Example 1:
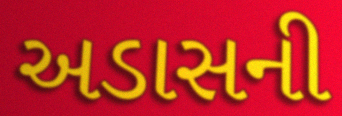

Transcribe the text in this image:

અડાસની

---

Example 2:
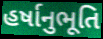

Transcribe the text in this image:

હર્ષાનુભૂતિ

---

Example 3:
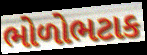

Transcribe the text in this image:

ભોળોભટાક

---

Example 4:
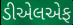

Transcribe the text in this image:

ડીએલએફ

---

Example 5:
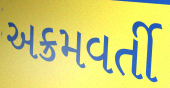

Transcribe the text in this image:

અક્રમવર્તી